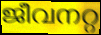
ജീവനറ്റ